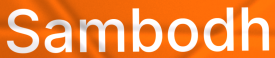
Sambodh